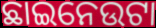
ଛାଇନେଉଟା